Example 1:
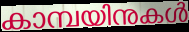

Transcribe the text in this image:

കാമ്പയിനുകൾ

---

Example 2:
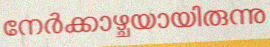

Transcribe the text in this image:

നേർക്കാഴ്ചയായിരുന്നു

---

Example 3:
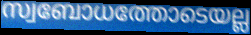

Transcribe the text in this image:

സ്വബോധത്തോടെയല്ല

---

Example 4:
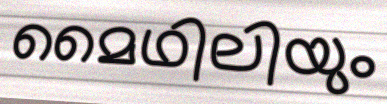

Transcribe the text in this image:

മൈഥിലിയും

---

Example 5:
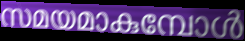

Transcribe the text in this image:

സമയമാകുമ്പോൾ